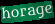
horage